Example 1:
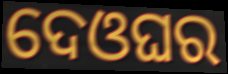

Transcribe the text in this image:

ଦେଓଘର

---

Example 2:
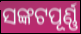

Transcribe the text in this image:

ସଙ୍କଟପୂର୍ଣ୍ଣ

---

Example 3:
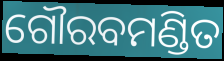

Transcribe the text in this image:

ଗୌରବମଣ୍ଡିତ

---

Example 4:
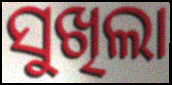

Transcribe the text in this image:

ସୁଖିଲା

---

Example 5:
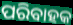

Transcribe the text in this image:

ପରିବାହକ